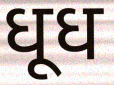
धूध